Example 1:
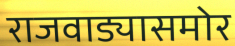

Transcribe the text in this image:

राजवाड्यासमोर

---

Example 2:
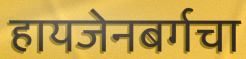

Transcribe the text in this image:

हायजेनबर्गचा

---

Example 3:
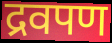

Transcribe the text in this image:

द्रवपण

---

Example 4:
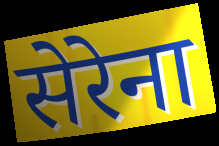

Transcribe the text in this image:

सेरेना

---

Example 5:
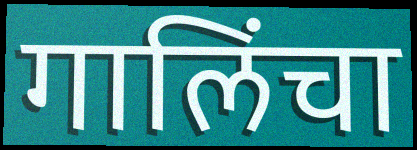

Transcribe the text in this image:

गालिंचा